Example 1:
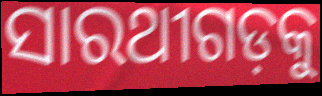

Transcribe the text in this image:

ସାରଥୀଗଡ଼କୁ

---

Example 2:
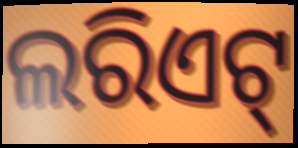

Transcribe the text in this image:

ଲରିଏଟ୍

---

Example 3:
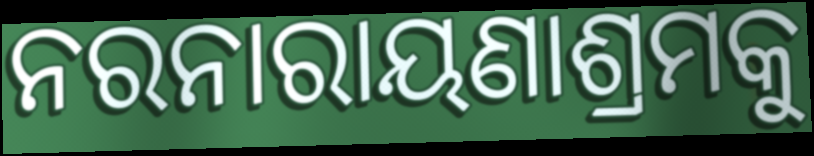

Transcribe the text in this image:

ନରନାରାୟଣାଶ୍ରମକୁ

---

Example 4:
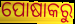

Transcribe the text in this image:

ପୋଷାକରୁ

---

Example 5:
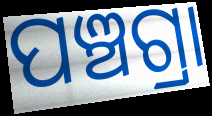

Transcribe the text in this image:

ପଞ୍ଚଗ୍ରା